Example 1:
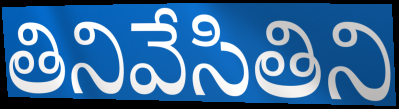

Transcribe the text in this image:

తినివేసితిని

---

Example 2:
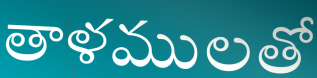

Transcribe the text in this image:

తాళములతో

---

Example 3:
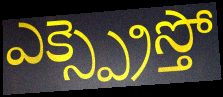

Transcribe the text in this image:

ఎక్స్ప్రెస్తో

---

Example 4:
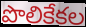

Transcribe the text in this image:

పొలికేకల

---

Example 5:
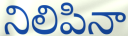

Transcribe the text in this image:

నిలిపినా